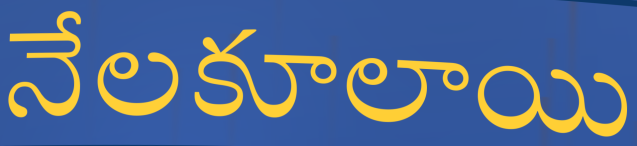
నేలకూలాయి